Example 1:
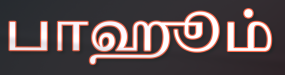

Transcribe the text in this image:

பாஹூம்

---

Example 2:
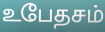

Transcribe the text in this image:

உபேதசம்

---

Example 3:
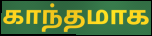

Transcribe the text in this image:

காந்தமாக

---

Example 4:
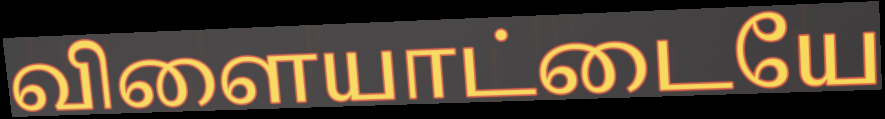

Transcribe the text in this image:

விளையாட்டையே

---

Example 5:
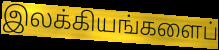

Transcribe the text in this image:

இலக்கியங்களைப்